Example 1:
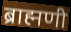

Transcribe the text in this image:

ब्राह्मणी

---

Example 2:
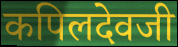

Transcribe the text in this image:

कपिलदेवजी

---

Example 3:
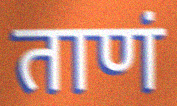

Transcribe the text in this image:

ताणं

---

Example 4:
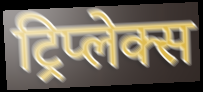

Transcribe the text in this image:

ट्रिप्लेक्स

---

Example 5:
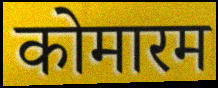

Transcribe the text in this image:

कोमारम